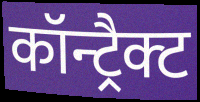
कॉन्‍ट्रैक्‍ट